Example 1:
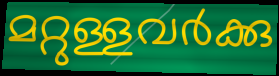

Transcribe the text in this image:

മറ്റുള്ളവർക്കു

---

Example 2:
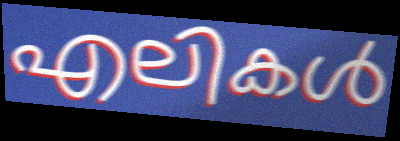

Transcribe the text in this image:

എലികൾ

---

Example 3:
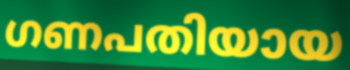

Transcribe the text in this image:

ഗണപതിയായ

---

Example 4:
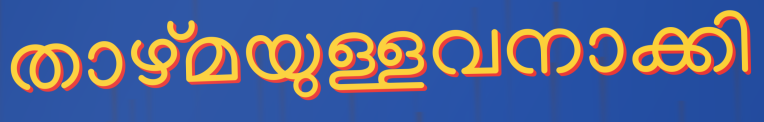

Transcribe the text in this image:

താഴ്മയുള്ളവനാക്കി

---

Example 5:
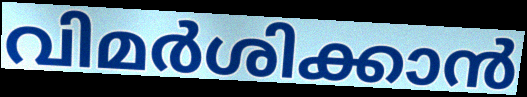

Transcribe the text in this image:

വിമർശിക്കാൻ